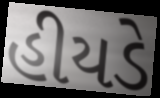
હીયડે